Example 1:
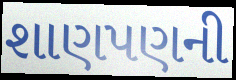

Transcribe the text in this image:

શાણપણની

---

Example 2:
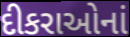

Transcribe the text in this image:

દીકરાઓનાં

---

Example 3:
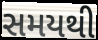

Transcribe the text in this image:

સમયથી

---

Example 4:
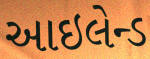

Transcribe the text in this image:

આઇલેન્ડ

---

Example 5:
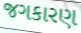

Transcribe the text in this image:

જગકારણ